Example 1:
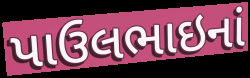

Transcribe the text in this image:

પાઉલભાઇનાં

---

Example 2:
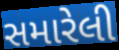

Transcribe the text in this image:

સમારેલી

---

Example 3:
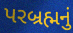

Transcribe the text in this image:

પરબ્રહ્મનું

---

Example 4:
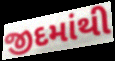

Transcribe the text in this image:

જીદમાંથી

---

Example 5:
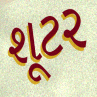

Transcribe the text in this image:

શૂટર